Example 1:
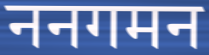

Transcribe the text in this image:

ननगमन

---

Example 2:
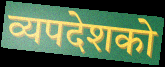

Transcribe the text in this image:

व्यपदेशको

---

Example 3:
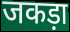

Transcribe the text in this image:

जकड़ा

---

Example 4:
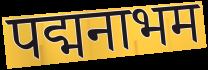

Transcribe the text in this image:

पद्मनाभम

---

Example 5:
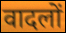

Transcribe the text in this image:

वादलों